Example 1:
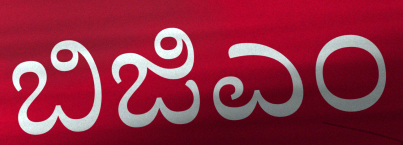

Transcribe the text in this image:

ಬಿಜಿಎಂ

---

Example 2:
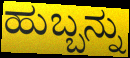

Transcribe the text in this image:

ಹುಬ್ಬನ್ನು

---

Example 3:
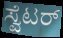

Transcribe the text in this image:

ಸ್ವೆಟರ್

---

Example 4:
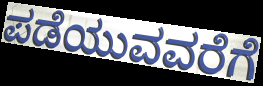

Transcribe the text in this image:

ಪಡೆಯುವವರೆಗೆ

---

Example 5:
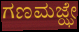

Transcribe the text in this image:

ಗಣಮಜ್ಝೇ